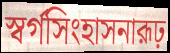
স্বর্গসিংহাসনারূঢ়